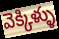
వెక్కిళ్ళు